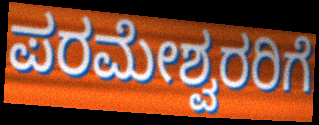
ಪರಮೇಶ್ವರರಿಗೆ